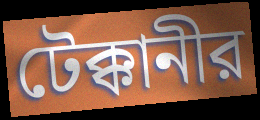
টেক্কানীর